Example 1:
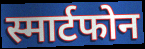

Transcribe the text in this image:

स्मार्टफोन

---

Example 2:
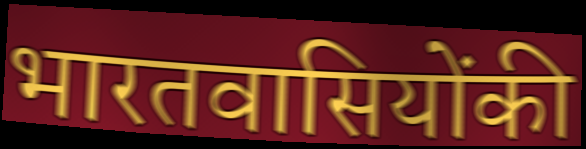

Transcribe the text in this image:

भारतवासियोंकी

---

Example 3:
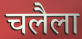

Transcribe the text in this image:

चलैला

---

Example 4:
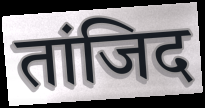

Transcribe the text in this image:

तांजिद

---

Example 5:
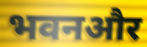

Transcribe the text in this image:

भवनऔर